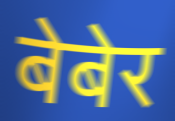
बेबेर